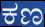
ಕಣ